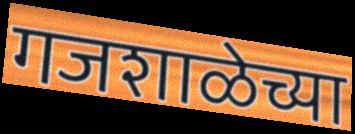
गजशाळेच्या